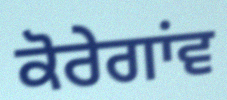
ਕੋਰੇਗਾਂਵ